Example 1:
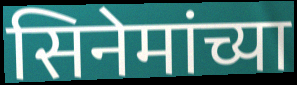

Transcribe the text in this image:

सिनेमांच्या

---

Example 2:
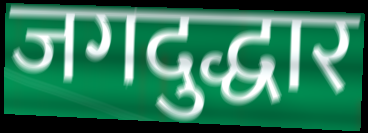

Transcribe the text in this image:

जगदुद्धार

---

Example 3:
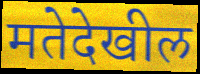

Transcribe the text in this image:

मतेदेखील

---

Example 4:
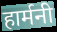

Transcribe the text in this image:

हार्मनी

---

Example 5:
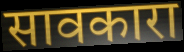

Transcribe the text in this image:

सावकारा